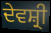
ਦੇਵਸ਼੍ਰੀ